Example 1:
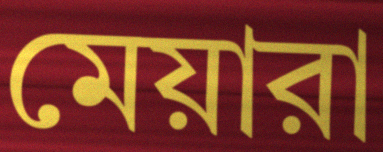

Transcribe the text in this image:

মেয়ারা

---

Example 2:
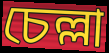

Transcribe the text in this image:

চেল্লা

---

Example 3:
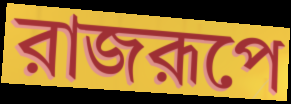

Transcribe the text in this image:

রাজরূপে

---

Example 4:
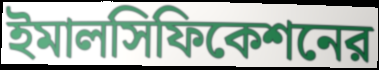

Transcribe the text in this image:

ইমালসিফিকেশনের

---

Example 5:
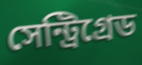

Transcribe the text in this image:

সেন্ট্রিগ্রেড